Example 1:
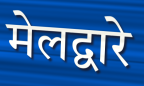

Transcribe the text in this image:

मेलद्वारे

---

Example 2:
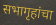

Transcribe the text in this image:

सभागृहांचा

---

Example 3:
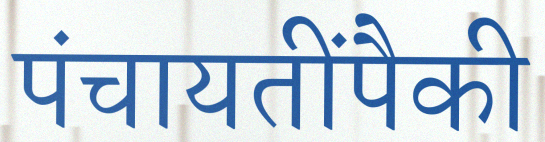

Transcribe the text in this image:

पंचायतींपैकी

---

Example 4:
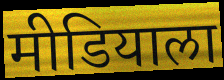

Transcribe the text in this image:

मीडियाला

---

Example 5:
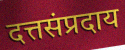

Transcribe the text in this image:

दत्तसंप्रदाय